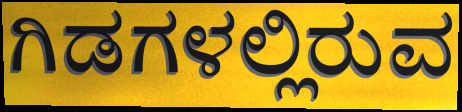
ಗಿಡಗಳಲ್ಲಿರುವ